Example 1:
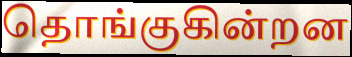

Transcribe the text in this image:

தொங்குகின்றன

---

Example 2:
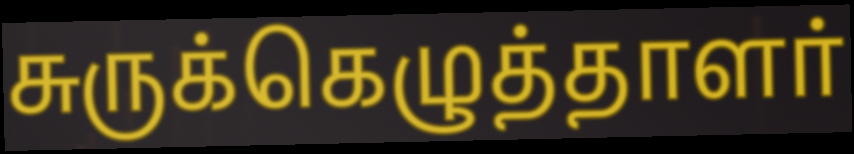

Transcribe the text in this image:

சுருக்கெழுத்தாளர்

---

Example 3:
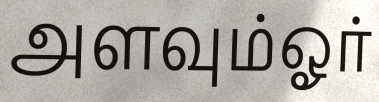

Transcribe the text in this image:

அளவும்ஓர்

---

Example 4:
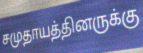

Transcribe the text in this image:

சமுதாயத்தினருக்கு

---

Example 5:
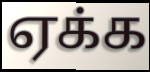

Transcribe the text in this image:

ஏக்க